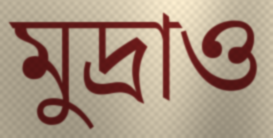
মুদ্রাও